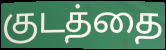
குடத்தை